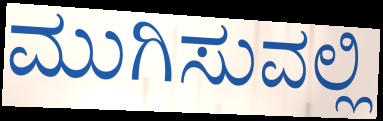
ಮುಗಿಸುವಲ್ಲಿ